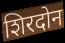
शिरदोन